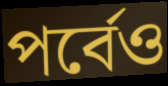
পর্বেও